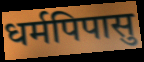
धर्मपिपासु